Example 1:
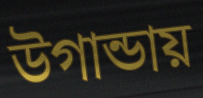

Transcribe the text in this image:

উগান্ডায়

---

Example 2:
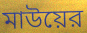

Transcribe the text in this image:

মাউয়ের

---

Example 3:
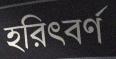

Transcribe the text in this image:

হরিৎবর্ণ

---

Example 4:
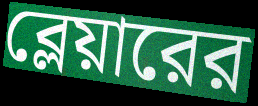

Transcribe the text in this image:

ব্লেয়ারের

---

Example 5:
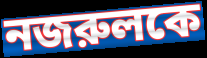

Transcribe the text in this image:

নজরুলকে